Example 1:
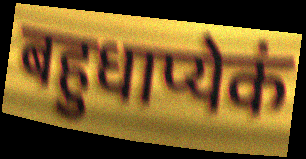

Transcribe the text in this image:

बहुधाप्येकं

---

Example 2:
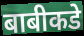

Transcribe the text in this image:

बाबीकडे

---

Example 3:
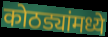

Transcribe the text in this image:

कोठड्यांमध्ये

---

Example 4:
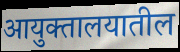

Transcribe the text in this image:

आयुक्तालयातील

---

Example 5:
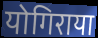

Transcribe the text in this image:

योगिराया